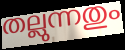
തല്ലുന്നതും